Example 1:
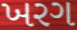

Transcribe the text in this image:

ખરગ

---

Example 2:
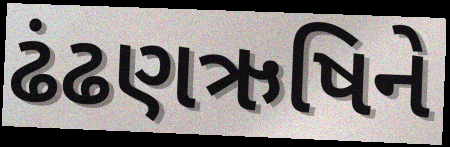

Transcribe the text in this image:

ઢંઢણઋષિને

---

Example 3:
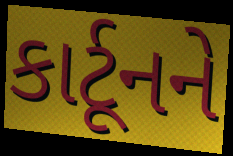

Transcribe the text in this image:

કાર્ટૂનને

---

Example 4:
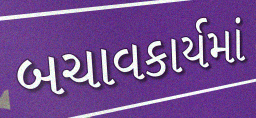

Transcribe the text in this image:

બચાવકાર્યમાં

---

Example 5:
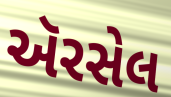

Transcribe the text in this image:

ઍરસેલ